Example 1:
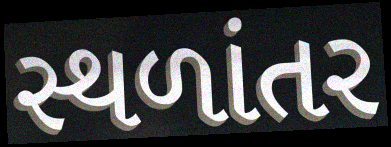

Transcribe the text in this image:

સ્થળાંતર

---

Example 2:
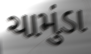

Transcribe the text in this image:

ચામુંડા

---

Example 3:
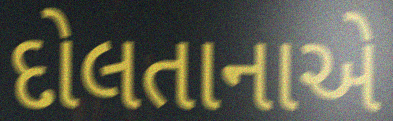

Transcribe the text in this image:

દોલતાનાએ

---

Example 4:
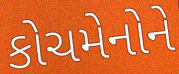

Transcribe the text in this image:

કોચમેનોને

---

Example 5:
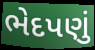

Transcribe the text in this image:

ભેદપણું